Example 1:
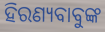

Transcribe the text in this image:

ହିରଣ୍ୟବାବୁଙ୍କ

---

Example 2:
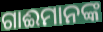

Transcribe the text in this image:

ଗାଈମାନଙ୍କ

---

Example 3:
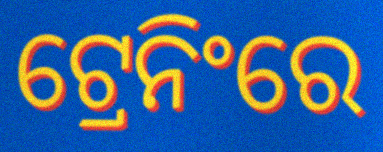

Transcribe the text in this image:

ଟ୍ରେନିଂରେ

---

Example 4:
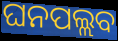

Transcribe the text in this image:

ଘନପଲ୍ଲବ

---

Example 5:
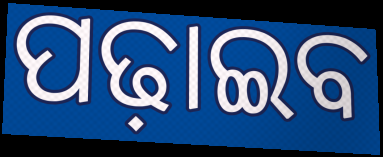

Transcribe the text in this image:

ପଢ଼ାଇବ